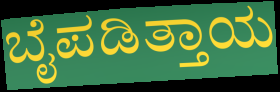
ಬೈಪಡಿತ್ತಾಯ